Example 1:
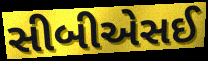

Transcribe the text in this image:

સીબીએસઈ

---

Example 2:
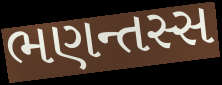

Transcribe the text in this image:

ભણન્તસ્સ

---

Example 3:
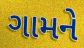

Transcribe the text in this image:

ગામને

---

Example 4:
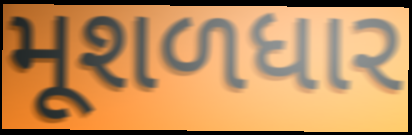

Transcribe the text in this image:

મૂશળધાર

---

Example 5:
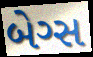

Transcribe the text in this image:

બેગ્સ